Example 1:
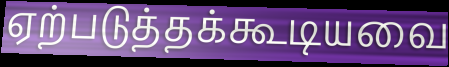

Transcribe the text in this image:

ஏற்படுத்தக்கூடியவை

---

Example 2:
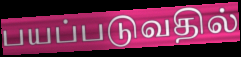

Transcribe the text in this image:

பயப்படுவதில்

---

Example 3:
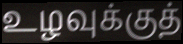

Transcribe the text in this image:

உழவுக்குத்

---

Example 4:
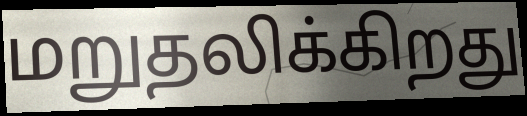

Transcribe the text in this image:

மறுதலிக்கிறது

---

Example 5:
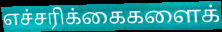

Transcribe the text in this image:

எச்சரிக்கைகளைக்